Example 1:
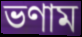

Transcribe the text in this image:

ভণাম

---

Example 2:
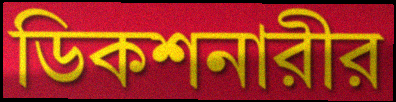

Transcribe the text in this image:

ডিকশনারীর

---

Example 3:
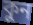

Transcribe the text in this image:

কুন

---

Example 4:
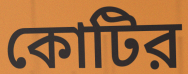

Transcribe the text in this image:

কোটির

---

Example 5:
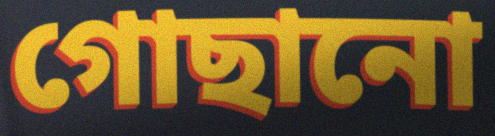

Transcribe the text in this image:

গোছানো